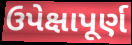
ઉપેક્ષાપૂર્ણ